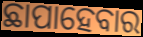
ଛାପାହେବାର